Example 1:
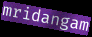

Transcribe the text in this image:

mridangam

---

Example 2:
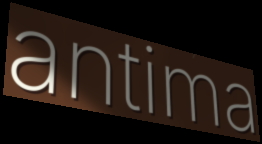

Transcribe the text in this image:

antima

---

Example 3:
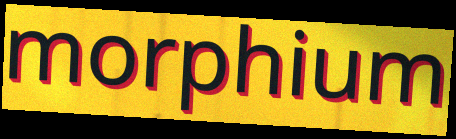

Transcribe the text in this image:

morphium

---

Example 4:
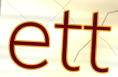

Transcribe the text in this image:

ett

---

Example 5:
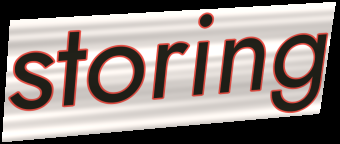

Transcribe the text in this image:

storing